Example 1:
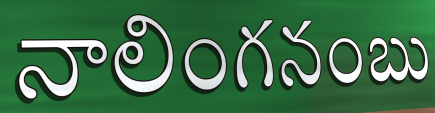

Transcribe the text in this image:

నాలింగనంబు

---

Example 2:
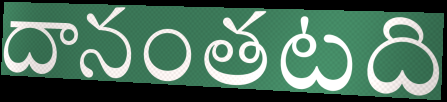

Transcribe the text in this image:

దానంతటది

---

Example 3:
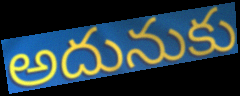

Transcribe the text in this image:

అదునుకు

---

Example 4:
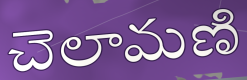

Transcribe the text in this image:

చెలామణి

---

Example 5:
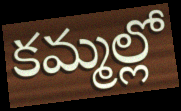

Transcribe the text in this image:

కమ్మల్లో